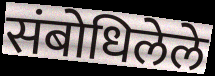
संबोधिलेले